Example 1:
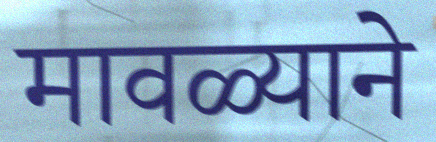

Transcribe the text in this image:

मावळ्याने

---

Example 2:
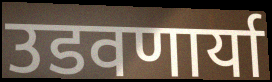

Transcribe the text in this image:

उडवणार्या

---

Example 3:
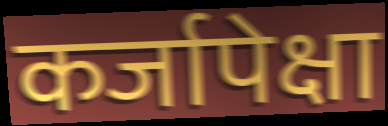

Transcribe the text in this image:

कर्जापेक्षा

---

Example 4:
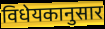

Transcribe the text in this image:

विधेयकानुसार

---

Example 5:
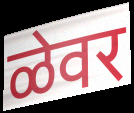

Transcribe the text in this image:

ळेवर